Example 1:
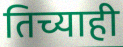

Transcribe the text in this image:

तिच्याही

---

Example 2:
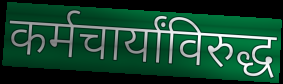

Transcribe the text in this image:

कर्मचार्यांविरुद्ध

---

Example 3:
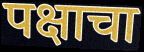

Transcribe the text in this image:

पक्षाचा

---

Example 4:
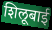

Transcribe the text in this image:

शिलूबाई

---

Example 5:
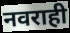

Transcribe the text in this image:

नवराही